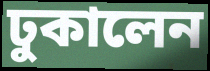
ঢুকালেন